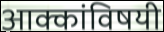
आक्कांविषयी